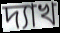
দ্যাখ